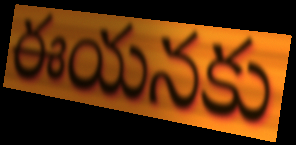
ఈయనకు